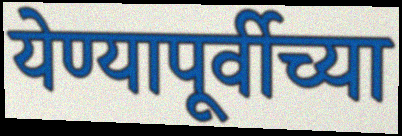
येण्यापूर्वीच्या